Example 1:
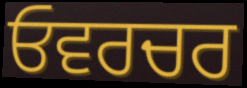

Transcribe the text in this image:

ਓਵਰਚਰ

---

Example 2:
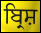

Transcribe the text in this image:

ਬ੍ਰਿਸ਼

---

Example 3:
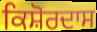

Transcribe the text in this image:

ਕਿਸ਼ੋਰਦਾਸ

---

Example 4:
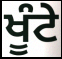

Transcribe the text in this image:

ਖੂੰਟੇ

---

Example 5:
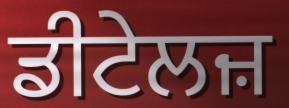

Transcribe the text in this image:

ਡੀਟੇਲਜ਼